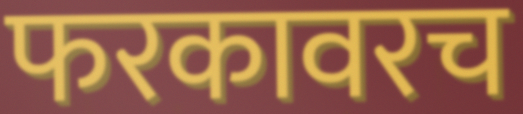
फरकावरच